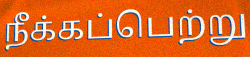
நீக்கப்பெற்று